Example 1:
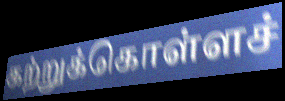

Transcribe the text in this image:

கற்றுக்கொள்ளச்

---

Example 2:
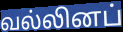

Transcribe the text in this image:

வல்லினப்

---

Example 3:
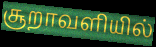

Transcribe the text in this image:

சூறாவளியில்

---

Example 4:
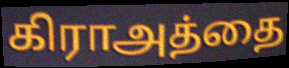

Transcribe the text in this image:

கிராஅத்தை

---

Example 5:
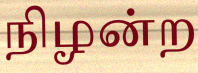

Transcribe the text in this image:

நிழன்ற